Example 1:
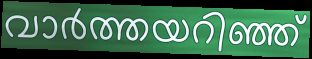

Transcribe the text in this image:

വാർത്തയറിഞ്ഞ്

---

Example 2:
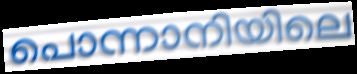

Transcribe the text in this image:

പൊന്നാനിയിലെ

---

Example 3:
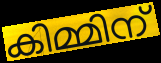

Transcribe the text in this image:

കിമ്മിന്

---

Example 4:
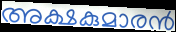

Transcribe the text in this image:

അക്ഷകുമാരൻ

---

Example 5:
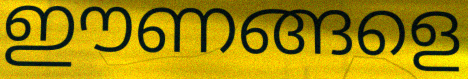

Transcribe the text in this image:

ഈണങ്ങളെ